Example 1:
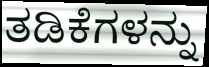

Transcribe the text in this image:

ತಡಿಕೆಗಳನ್ನು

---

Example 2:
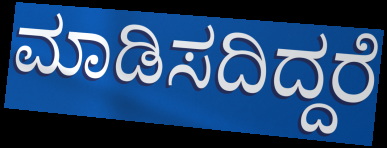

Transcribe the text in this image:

ಮಾಡಿಸದಿದ್ದರೆ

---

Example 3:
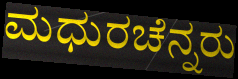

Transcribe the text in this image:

ಮಧುರಚೆನ್ನರು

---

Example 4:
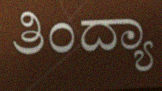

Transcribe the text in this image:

ತಿಂದ್ಯಾ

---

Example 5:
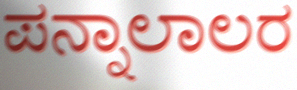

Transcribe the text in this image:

ಪನ್ನಾಲಾಲರ